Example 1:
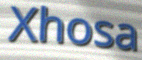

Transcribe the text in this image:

Xhosa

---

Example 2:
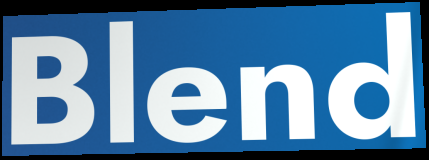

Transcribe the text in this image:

Blend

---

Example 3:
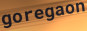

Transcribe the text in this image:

goregaon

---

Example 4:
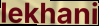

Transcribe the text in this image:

lekhani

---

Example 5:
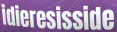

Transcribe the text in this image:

idieresisside